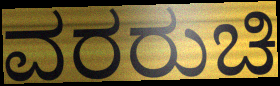
ವರರುಚಿ